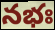
నభః